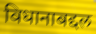
विधानाबद्दल